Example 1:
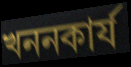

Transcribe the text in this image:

খননকাৰ্য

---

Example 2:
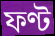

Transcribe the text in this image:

ফণ্ট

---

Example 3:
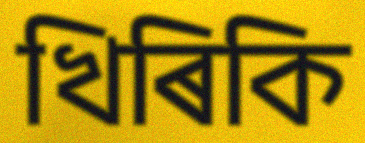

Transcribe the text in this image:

খিৰিকি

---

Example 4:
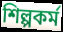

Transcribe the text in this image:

শিল্পকৰ্ম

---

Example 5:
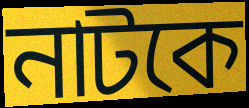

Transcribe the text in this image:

নাটকে